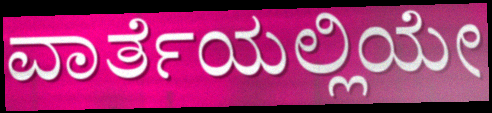
ವಾರ್ತೆಯಲ್ಲಿಯೇ